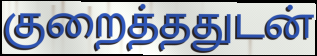
குறைத்ததுடன்